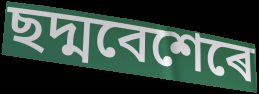
ছদ্মবেশেৰে